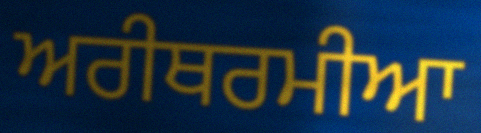
ਅਰੀਥਰਮੀਆ